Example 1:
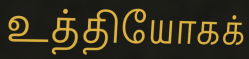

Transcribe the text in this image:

உத்தியோகக்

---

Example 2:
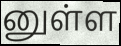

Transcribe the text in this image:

னுள்ள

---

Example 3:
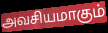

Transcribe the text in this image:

அவசியமாகும்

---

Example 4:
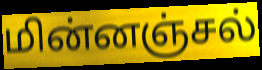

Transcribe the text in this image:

மின்னஞ்சல்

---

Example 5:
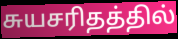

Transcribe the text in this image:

சுயசரிதத்தில்